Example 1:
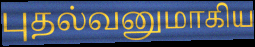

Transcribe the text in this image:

புதல்வனுமாகிய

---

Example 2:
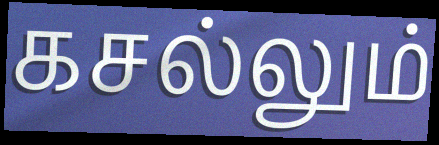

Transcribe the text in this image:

கசல்லும்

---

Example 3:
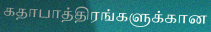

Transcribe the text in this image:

கதாபாத்திரங்களுக்கான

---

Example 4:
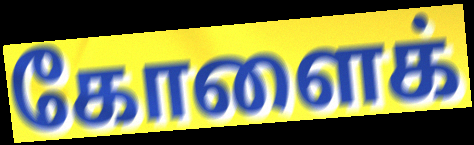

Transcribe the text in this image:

கோளைக்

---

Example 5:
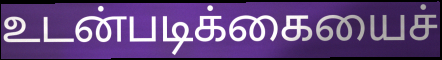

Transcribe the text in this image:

உடன்படிக்கையைச்